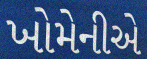
ખોમેનીએ